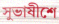
সুভাষীশে